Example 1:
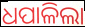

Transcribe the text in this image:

ଧପାଳିଲା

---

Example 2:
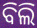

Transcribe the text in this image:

ବିଲି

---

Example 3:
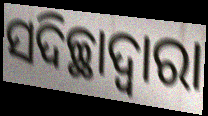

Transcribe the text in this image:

ସଦିଚ୍ଛାଦ୍ୱାରା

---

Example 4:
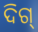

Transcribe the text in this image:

ଦିଗ୍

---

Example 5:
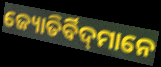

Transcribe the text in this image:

ଜ୍ୟୋତିର୍ବିଦ୍‌ମାନେ